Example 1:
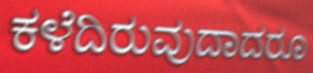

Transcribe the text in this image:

ಕಳೆದಿರುವುದಾದರೂ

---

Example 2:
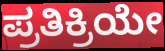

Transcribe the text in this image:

ಪ್ರತಿಕ್ರಿಯೇ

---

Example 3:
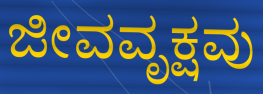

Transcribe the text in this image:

ಜೀವವೃಕ್ಷವು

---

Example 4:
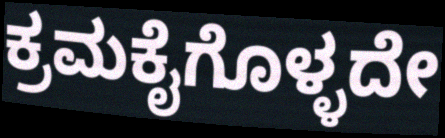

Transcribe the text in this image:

ಕ್ರಮಕೈಗೊಳ್ಳದೇ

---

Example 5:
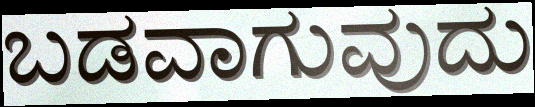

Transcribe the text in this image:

ಬಡವಾಗುವುದು